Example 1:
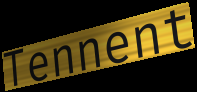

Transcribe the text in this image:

Tennent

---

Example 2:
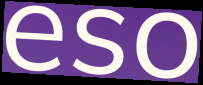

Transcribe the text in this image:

eso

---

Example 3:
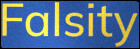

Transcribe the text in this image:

Falsity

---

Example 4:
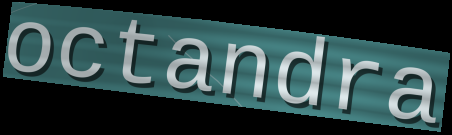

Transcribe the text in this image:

octandra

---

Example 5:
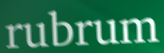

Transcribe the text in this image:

rubrum